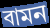
বামন